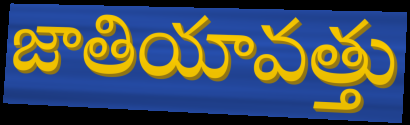
జాతియావత్తు